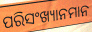
ପରିସଂଖ୍ୟାନମାନ